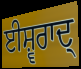
ਈਸ਼੍ਵਰਾਦ੍